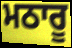
ਮਠਾਰੂ